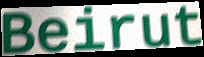
Beirut